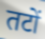
तटों